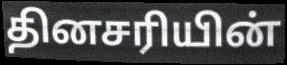
தினசரியின்